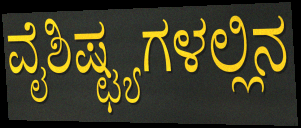
ವೈಶಿಷ್ಟ್ಯಗಳಲ್ಲಿನ